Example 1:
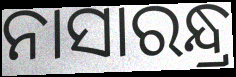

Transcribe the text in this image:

ନାସାରନ୍ଧ୍ର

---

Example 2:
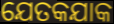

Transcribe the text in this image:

ଯେତକଯାକ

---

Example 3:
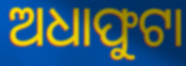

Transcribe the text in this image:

ଅଧାଫୁଟା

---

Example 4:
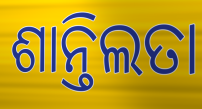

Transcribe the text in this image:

ଶାନ୍ତିଲତା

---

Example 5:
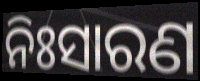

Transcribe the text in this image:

ନିଃସାରଣ